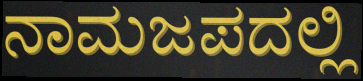
ನಾಮಜಪದಲ್ಲಿ